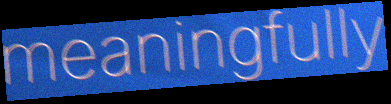
meaningfully